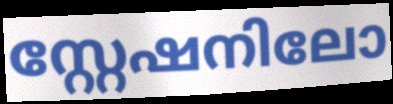
സ്റ്റേഷനിലോ